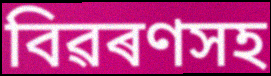
বিৱৰণসহ